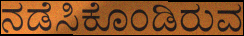
ನಡೆಸಿಕೊಂಡಿರುವ